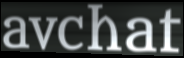
avchat